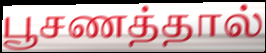
பூசணத்தால்